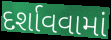
દર્શાવવામાં